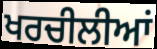
ਖਰਚੀਲੀਆਂ